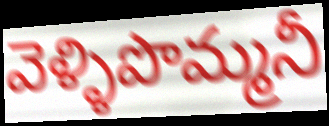
వెళ్ళిపొమ్మనీ